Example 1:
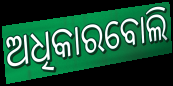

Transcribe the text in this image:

ଅଧିକାରବୋଲି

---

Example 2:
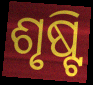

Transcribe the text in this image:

ଶୃଷ୍ଟି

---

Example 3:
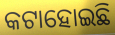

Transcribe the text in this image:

କଟାହୋଇଛି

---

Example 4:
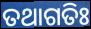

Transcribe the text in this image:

ତଥାଗତିଃ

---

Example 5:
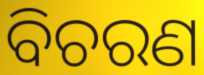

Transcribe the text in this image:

ବିଚରଣ